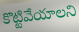
కొట్టివేయాలని